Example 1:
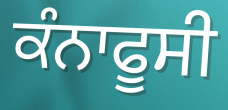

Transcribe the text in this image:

ਕੰਨਾਫੂਸੀ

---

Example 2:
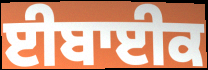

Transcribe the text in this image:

ਈਬਾਈਕ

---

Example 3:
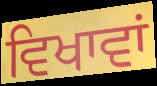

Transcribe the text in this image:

ਵਿਖਾਵਾਂ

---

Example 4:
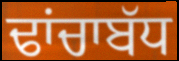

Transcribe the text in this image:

ਢਾਂਚਾਬੱਧ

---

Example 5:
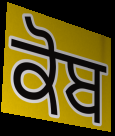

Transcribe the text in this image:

ਕੋਬ